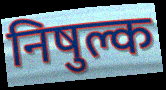
निषुल्क